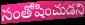
సంతోషించుడని